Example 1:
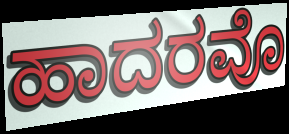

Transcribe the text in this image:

ಹಾದರವೊ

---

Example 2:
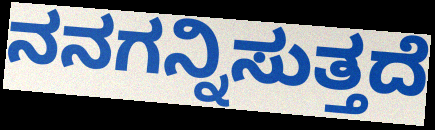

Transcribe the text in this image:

ನನಗನ್ನಿಸುತ್ತದೆ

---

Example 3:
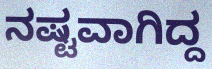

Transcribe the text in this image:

ನಷ್ಟವಾಗಿದ್ದ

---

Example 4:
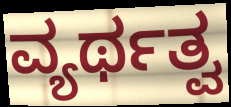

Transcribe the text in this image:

ವ್ಯರ್ಥತ್ವ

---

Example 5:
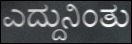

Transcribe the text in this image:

ಎದ್ದುನಿಂತು